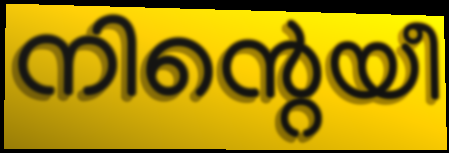
നിന്റെയീ